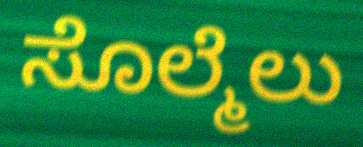
ಸೊಲ್ಮೆಲು